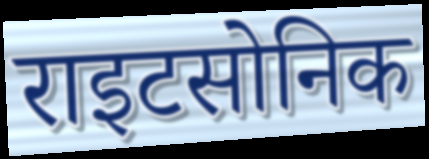
राइटसोनिक